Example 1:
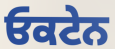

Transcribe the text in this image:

ਓਕਟੇਨ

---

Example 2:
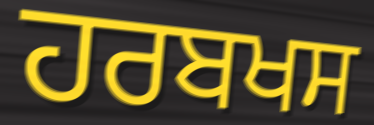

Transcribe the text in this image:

ਹਰਬਖਸ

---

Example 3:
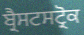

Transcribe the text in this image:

ਬ੍ਰੈਸਟਸਟ੍ਰੋਕ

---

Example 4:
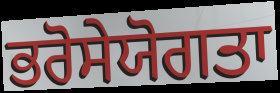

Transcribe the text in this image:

ਭਰੋਸੇਯੋਗਤਾ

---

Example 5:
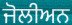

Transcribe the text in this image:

ਜੋਲੀਅਨ